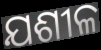
ଯଶୀଳ